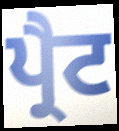
ਪ੍ਰੈਟ